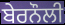
ਬੇਰਨੌਲੀ